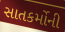
સાતકર્મોની